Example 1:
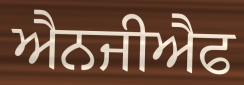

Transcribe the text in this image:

ਐਨਜੀਐਫ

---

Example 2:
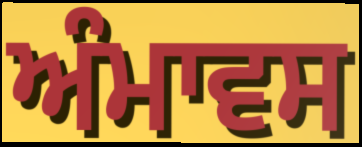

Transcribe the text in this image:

ਅੰਮਾਵਸ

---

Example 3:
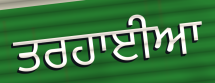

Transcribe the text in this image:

ਤਰਹਾਈਆ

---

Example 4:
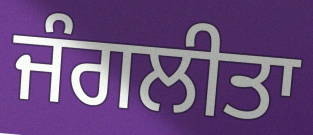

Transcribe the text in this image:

ਜੰਗਲੀਤਾ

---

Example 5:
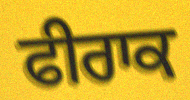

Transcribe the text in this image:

ਫੀਰਾਕ